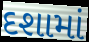
દશામાં